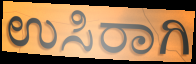
ಉಸಿರಾಗಿ